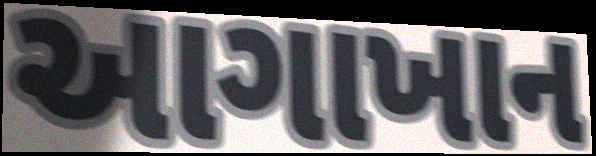
આગાખાન